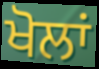
ਖੋਲਾਂ